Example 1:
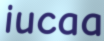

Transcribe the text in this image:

iucaa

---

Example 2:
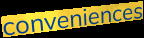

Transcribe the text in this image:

conveniences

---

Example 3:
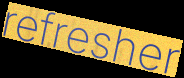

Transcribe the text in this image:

refresher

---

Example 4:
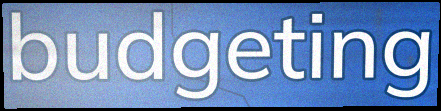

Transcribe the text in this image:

budgeting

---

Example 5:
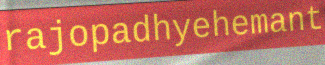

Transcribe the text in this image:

rajopadhyehemant